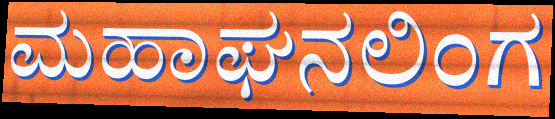
ಮಹಾಘನಲಿಂಗ